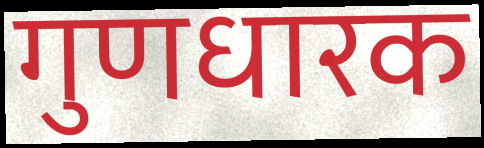
गुणधारक